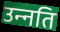
उन्नति